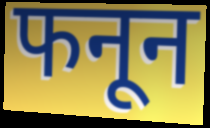
फनून